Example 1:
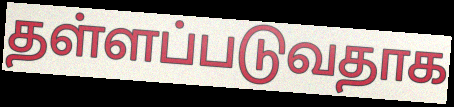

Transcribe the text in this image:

தள்ளப்படுவதாக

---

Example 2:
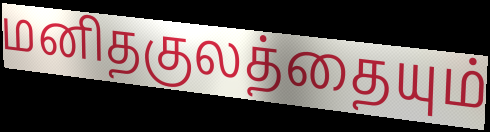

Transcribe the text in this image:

மனிதகுலத்தையும்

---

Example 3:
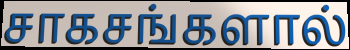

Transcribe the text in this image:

சாகசங்களால்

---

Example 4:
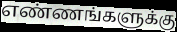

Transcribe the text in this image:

எண்ணங்களுக்கு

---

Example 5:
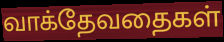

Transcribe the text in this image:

வாக்தேவதைகள்